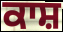
ਕਾਸ਼